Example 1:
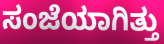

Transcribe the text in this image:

ಸಂಜೆಯಾಗಿತ್ತು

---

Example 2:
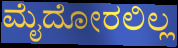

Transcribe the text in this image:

ಮೈದೋರಲಿಲ್ಲ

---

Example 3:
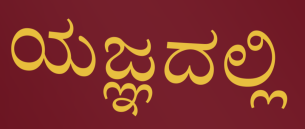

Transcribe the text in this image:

ಯಜ್ಞದಲ್ಲಿ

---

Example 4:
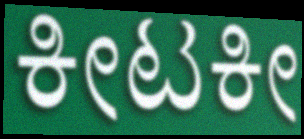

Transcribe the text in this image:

ಕೀಟಕೀ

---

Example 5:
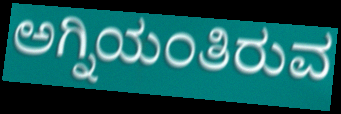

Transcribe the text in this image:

ಅಗ್ನಿಯಂತಿರುವ